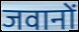
जवानों